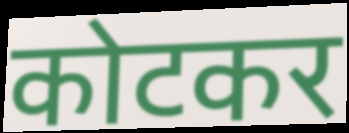
कोटकर